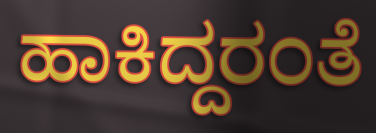
ಹಾಕಿದ್ದರಂತೆ